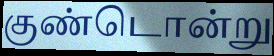
குண்டொன்று